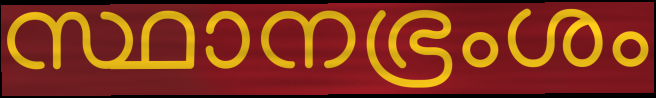
സ്ഥാനഭ്രംശം